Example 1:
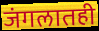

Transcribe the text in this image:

जंगलातही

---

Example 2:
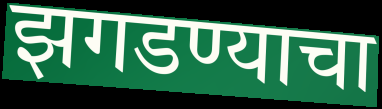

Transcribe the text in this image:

झगडण्याचा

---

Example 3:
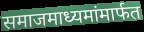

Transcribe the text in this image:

समाजमाध्यमांमार्फत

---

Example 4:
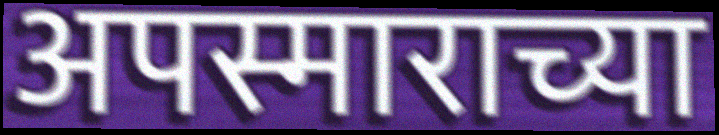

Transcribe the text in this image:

अपस्माराच्या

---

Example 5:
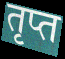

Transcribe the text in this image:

तृप्त